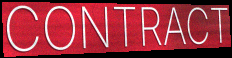
CONTRACT